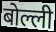
बोल्ली